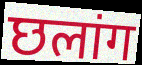
छलांग